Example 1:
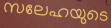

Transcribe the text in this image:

സലേഹയുടെ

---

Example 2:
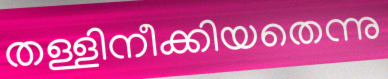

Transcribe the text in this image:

തള്ളിനീക്കിയതെന്നു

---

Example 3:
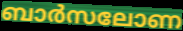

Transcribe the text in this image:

ബാർസലോണ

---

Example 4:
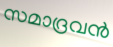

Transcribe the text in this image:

സമാദ്രവൻ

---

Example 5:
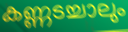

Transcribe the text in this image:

കണ്ണടച്ചാലും